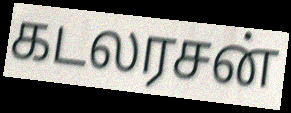
கடலரசன்